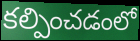
కల్పించడంలో